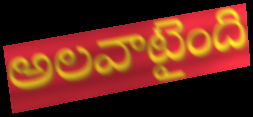
అలవాటైంది